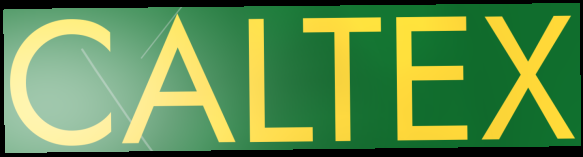
CALTEX